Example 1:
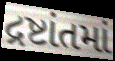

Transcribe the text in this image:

દ્રષ્ટાંતમાં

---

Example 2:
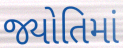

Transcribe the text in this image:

જ્યોતિમાં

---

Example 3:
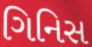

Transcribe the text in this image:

ગિનિસ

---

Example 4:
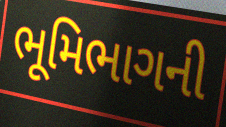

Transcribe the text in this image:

ભૂમિભાગની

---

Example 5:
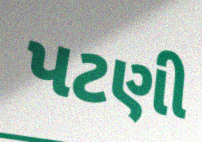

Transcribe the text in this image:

પટણી